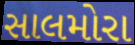
સાલમોરા